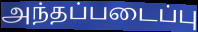
அந்தப்படைப்பு